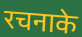
रचनाके